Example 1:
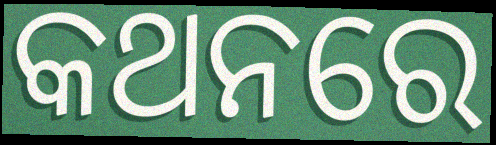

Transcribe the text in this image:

କଥନରେ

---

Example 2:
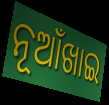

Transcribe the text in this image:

ନୂଆଁଖାଇ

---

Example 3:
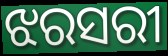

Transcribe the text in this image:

ଝରସରୀ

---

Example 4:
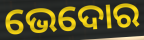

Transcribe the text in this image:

ଭେଦୋର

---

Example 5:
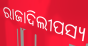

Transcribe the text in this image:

ରାଜାଦିଲୀପସ୍ୟ